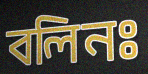
বলিনঃ